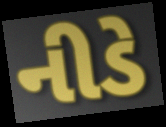
નીડે